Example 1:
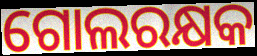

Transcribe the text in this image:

ଗୋଲରକ୍ଷକ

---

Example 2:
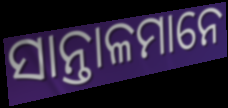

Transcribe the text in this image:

ସାନ୍ତାଳମାନେ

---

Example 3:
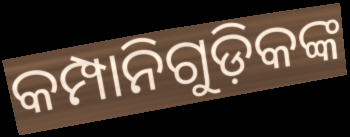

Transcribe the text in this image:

କମ୍ପାନିଗୁଡ଼ିକଙ୍କ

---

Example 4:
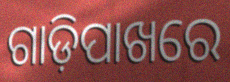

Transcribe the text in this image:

ଗାଡ଼ିପାଖରେ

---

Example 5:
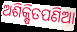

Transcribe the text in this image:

ଅଶିକ୍ଷିତପଣିଆ